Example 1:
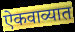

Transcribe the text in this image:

ऐकवाव्यात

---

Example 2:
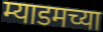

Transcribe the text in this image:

म्याडमच्या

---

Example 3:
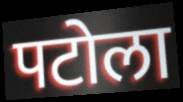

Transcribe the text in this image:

पटोला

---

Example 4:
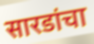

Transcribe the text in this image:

सारडांचा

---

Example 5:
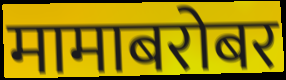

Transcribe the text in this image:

मामाबरोबर